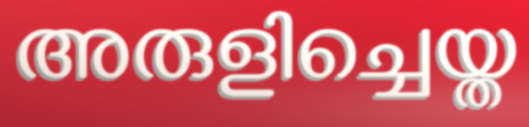
അരുളിച്ചെയ്ത